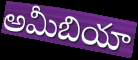
అమీబియా